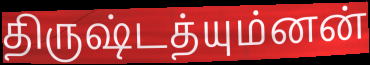
திருஷ்டத்யும்னன்